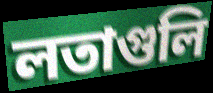
লতাগুলি